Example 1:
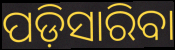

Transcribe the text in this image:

ପଡ଼ିସାରିବା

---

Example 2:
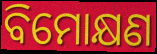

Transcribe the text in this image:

ବିମୋକ୍ଷଣ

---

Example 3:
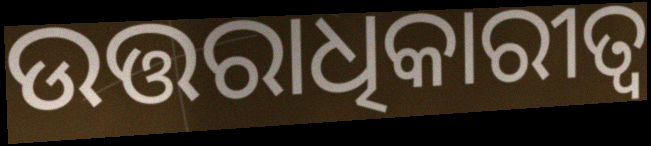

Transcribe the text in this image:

ଉତ୍ତରାଧିକାରୀତ୍ଵ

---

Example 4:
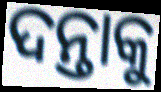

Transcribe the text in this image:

ଦନ୍ତାକୁ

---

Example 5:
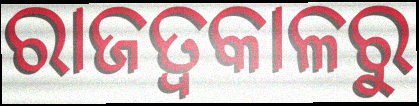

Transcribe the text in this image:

ରାଜତ୍ଵକାଳରୁ